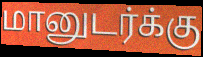
மானுடர்க்கு